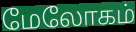
மேலோகம்